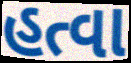
હત્વા